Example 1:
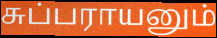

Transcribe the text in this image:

சுப்பராயனும்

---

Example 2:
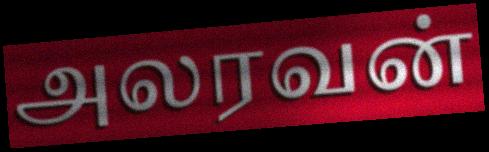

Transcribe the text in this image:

அலரவன்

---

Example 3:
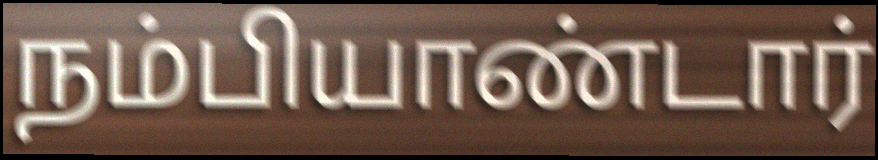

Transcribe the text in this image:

நம்பியாண்டார்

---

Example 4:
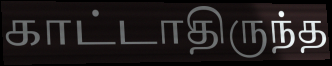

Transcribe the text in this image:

காட்டாதிருந்த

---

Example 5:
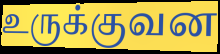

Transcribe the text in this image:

உருக்குவன